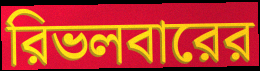
রিভলবারের